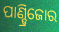
ପାଣ୍ଡ୍ରିଜୋର